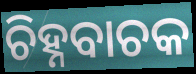
ଚିହ୍ନବାଚକ